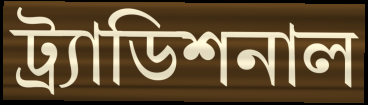
ট্র্যাডিশনাল